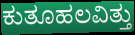
ಕುತೂಹಲವಿತ್ತು